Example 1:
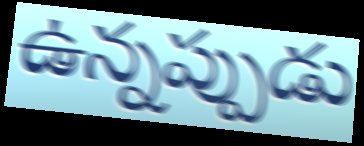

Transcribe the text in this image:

ఉన్నప్పుడు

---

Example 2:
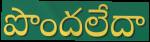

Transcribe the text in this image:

పొందలేదా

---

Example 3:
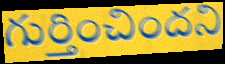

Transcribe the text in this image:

గుర్తించిందని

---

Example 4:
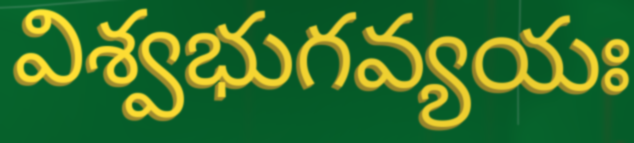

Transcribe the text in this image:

విశ్వభుగవ్యయః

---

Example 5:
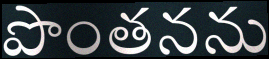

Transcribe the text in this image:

పొంతనను